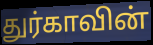
துர்காவின்